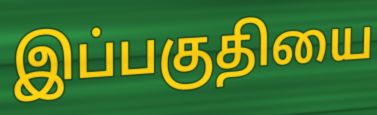
இப்பகுதியை